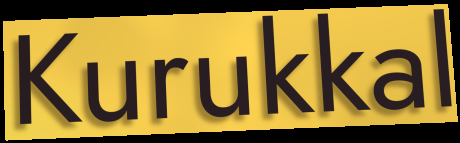
Kurukkal